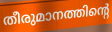
തീരുമാനത്തിന്റെ